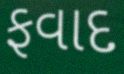
ફવાદ